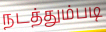
நடத்தும்படி